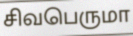
சிவபெருமா